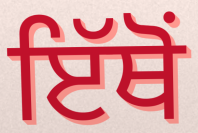
ਇੱਥੋਂ